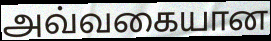
அவ்வகையான